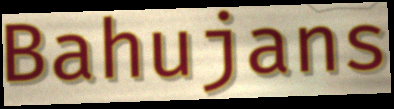
Bahujans